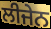
ਲੀਜੇਨ